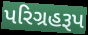
પરિગ્રહરૂપ